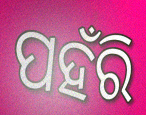
ପହଁରି